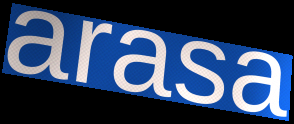
arasa